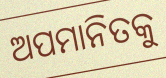
ଅପମାନିତକୁ